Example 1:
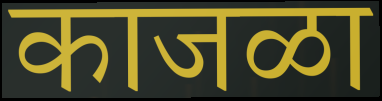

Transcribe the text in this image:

काजळा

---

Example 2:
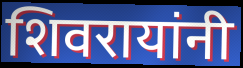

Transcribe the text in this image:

शिवरायांनी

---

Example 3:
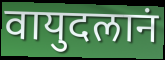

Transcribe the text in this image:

वायुदलानं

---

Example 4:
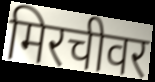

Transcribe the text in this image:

मिरचीवर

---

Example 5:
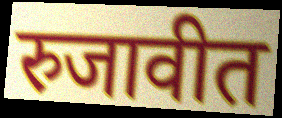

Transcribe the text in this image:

रुजावीत